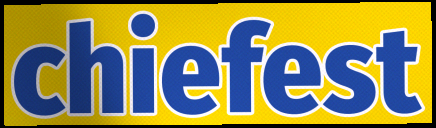
chiefest